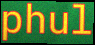
phul